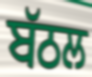
ਬੱਠਲ